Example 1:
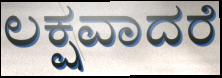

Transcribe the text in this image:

ಲಕ್ಷವಾದರೆ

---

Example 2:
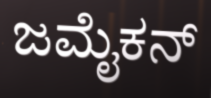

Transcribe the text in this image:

ಜಮೈಕನ್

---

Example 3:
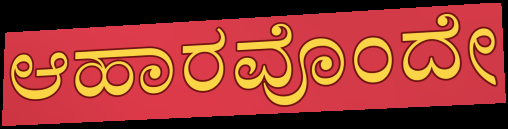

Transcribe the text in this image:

ಆಹಾರವೊಂದೇ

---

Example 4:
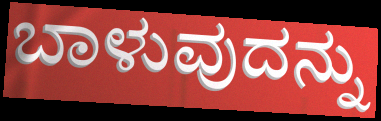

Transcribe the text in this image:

ಬಾಳುವುದನ್ನು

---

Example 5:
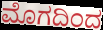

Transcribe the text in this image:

ಮೊಗದಿಂದ